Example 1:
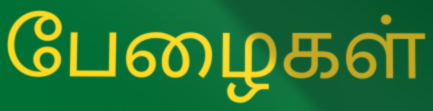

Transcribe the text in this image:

பேழைகள்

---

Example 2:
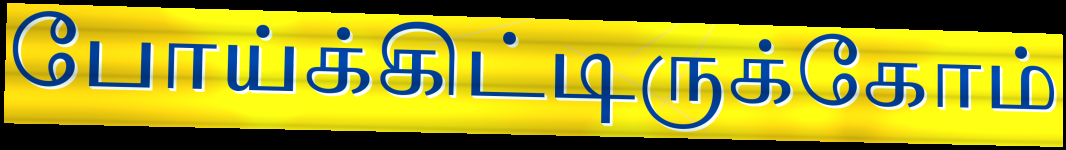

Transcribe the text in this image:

போய்க்கிட்டிருக்கோம்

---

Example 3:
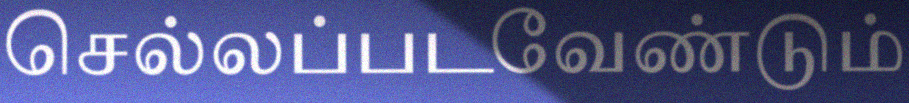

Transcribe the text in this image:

செல்லப்படவேண்டும்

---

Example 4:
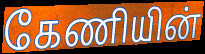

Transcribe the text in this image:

கேணியின்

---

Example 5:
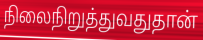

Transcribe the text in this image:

நிலைநிறுத்துவதுதான்